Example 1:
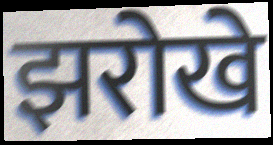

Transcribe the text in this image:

झरोखे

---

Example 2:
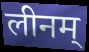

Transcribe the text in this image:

लीनम्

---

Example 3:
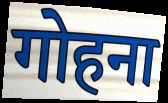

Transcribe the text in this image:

गोहना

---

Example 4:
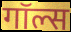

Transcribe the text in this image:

गॉल्स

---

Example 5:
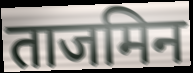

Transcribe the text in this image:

ताजमिन